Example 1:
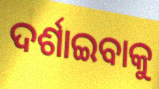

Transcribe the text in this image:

ଦର୍ଶାଇବାକୁ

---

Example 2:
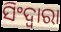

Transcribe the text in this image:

ସିଂଦ୍ୱାରା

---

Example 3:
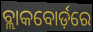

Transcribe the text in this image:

ବ୍ଲାକବୋର୍ଡ଼ରେ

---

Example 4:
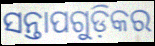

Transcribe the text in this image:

ସନ୍ତାପଗୁଡ଼ିକର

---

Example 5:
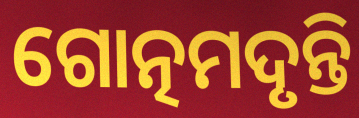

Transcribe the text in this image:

ଗୋତ୍ନମଦୃନ୍ତି